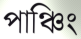
পাঞ্চিং